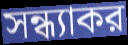
সন্ধ্যাকর